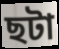
ছটা